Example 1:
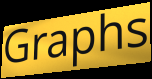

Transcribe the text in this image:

Graphs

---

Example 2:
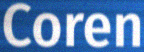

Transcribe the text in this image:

Coren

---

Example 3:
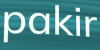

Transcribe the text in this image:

pakir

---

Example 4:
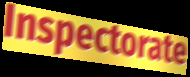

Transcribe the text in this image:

Inspectorate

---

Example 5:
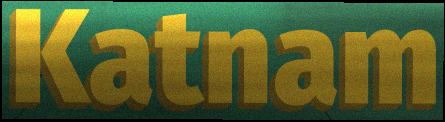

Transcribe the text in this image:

Katnam